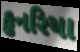
કુનરિયા